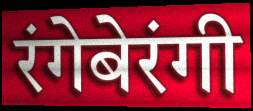
रंगेबेरंगी